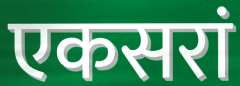
एकसरां